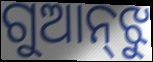
ଗୁଆନ୍‌ଝୁ